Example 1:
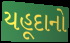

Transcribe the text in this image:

યહૂદાનો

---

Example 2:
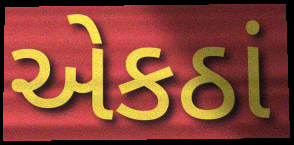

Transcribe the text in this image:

એકઠાં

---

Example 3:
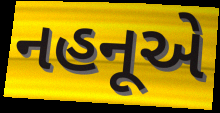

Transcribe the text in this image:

નહનૂએ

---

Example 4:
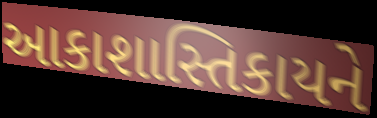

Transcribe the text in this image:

આકાશાસ્તિકાયને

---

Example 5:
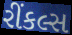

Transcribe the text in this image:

રીંકલ્સ